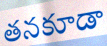
తనకూడా